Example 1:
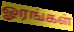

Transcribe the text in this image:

ஓரங்கள்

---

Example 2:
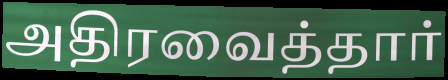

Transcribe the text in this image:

அதிரவைத்தார்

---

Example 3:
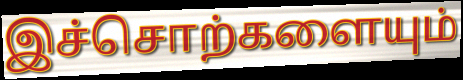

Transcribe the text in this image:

இச்சொற்களையும்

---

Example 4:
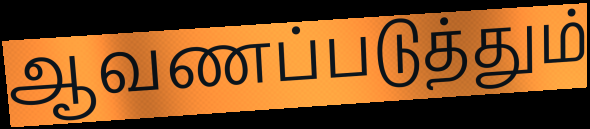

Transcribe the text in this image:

ஆவணப்படுத்தும்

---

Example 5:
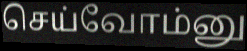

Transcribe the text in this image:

செய்வோம்னு